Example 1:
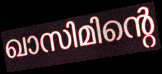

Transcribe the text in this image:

ഖാസിമിന്റെ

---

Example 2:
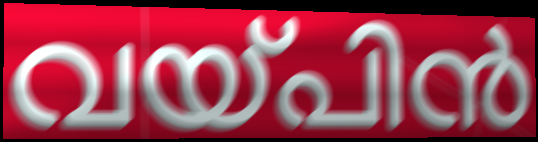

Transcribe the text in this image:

വയ്പിൻ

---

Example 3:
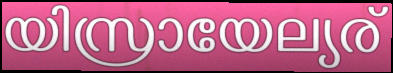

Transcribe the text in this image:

യിസ്രായേല്യര്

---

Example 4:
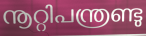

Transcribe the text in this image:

നൂറ്റിപന്ത്രണ്ടു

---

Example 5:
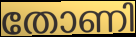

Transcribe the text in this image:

തോണി